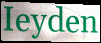
Ieyden